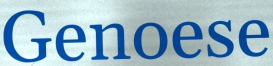
Genoese